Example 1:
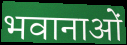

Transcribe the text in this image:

भवानाओं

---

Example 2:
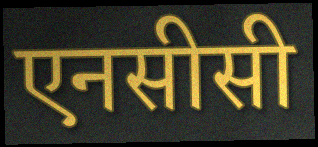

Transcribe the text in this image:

एनसीसी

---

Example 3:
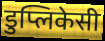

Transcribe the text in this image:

डुप्लिकेसी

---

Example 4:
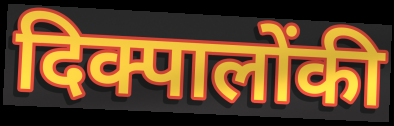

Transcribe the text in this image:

दिक्पालोंकी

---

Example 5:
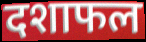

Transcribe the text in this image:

दशाफल